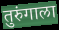
तुरुंगाला